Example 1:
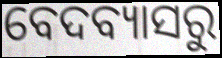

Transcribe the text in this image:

ବେଦବ୍ୟାସରୁ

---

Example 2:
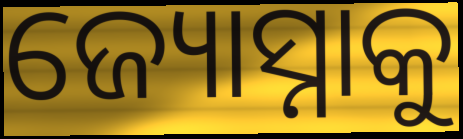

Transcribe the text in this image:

ଜ୍ୟୋସ୍ନାକୁ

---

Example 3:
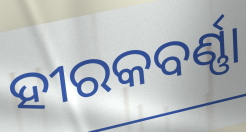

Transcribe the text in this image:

ହୀରକବର୍ଣ୍ଣା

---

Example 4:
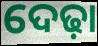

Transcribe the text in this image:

ଦେଢ଼ା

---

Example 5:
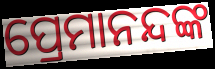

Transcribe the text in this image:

ପ୍ରେମାନନ୍ଦଙ୍କ